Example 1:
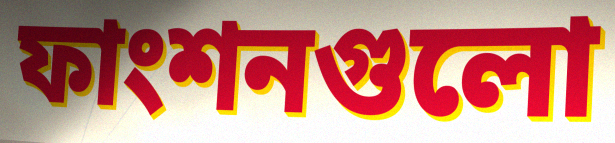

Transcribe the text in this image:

ফাংশনগুলো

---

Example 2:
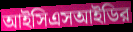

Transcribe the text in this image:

আইসিএসআইডির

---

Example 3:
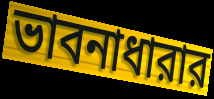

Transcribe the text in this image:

ভাবনাধারার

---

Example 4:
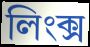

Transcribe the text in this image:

লিংক্স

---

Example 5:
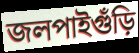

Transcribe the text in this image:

জলপাইগুঁড়ি